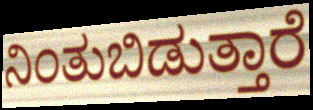
ನಿಂತುಬಿಡುತ್ತಾರೆ